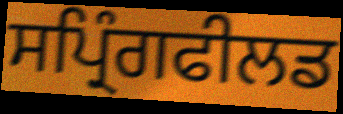
ਸਪ੍ਰਿੰਗਫੀਲਡ